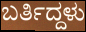
ಬರ್ತಿದ್ದಳು